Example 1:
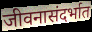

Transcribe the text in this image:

जीवनासंदर्भात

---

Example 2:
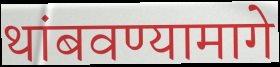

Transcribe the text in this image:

थांबवण्यामागे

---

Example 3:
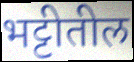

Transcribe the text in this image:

भट्टीतील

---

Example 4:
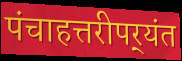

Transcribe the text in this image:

पंचाहत्तरीपर्यंत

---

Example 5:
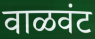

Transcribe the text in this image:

वाळवंट